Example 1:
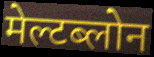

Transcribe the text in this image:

मेल्टब्लोन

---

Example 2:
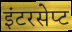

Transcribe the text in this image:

इंटरसेप्ट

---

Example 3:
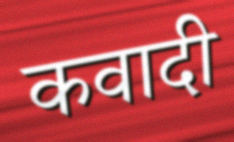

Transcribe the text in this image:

कवादी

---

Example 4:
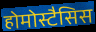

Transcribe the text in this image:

होमोस्टैसिस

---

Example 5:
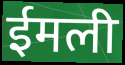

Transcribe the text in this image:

ईमली